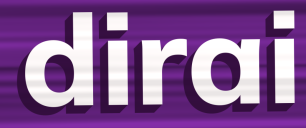
dirai